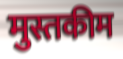
मुस्तकीम